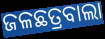
ଜଳଛତ୍ରବାଲା